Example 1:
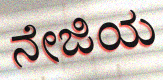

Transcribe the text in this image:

ನೇಜಿಯ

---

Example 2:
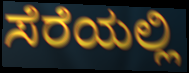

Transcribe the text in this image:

ಸೆರೆಯಲ್ಲಿ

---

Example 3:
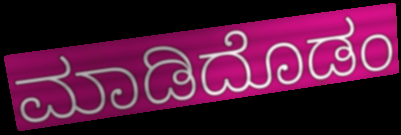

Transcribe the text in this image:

ಮಾಡಿದೊಡಂ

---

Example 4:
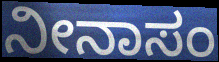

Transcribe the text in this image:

ನೀನಾಸಂ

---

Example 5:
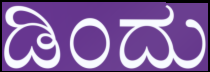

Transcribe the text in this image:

ಡಿಂದು